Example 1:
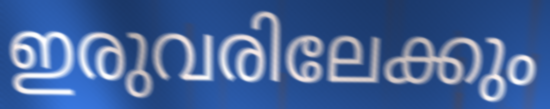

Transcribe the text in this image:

ഇരുവരിലേക്കും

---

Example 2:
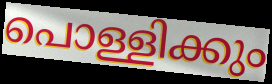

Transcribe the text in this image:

പൊള്ളിക്കും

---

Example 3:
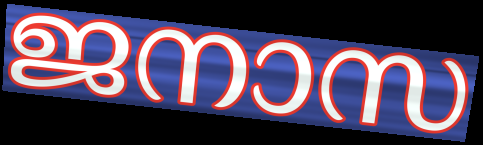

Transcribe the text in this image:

ജനാസ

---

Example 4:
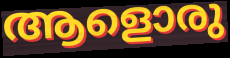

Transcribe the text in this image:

ആളൊരു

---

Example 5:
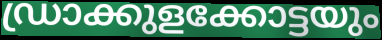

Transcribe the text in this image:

ഡ്രാക്കുളക്കോട്ടയും